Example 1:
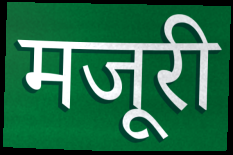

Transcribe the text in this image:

मजूरी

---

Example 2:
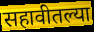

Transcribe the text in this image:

सहावीतल्या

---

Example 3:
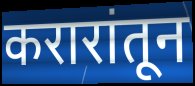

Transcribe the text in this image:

करारांतून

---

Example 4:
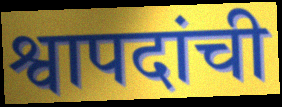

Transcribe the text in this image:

श्वापदांची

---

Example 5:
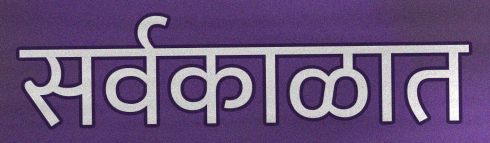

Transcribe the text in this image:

सर्वकाळात